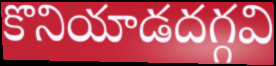
కొనియాడదగ్గవి